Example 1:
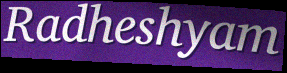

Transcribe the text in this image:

Radheshyam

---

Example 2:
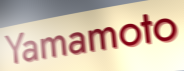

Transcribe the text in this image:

Yamamoto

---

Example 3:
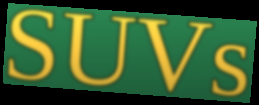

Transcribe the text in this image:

SUVs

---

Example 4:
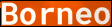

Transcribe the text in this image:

Borneo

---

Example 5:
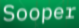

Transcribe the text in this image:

Sooper